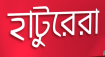
হাটুরেরা